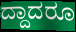
ದ್ದಾದರೂ